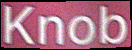
Knob